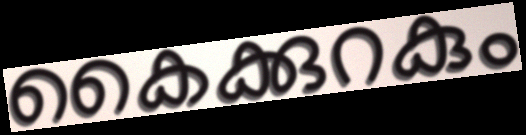
കൈക്കുറകും